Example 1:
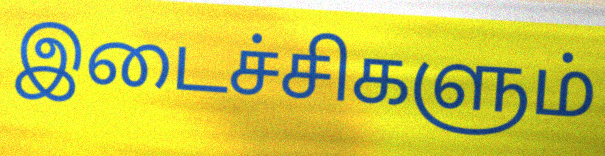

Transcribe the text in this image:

இடைச்சிகளும்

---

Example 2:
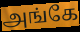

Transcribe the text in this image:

அங்கே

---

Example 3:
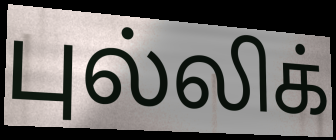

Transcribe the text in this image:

புல்லிக்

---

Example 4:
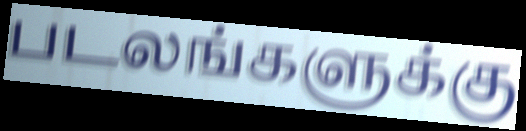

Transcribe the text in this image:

படலங்களுக்கு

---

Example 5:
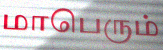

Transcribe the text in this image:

மாபெரும்